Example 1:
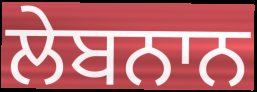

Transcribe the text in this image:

ਲੇਬਨਾਨ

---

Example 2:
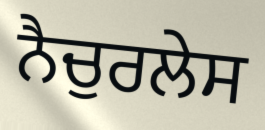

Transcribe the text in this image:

ਨੈਚੁਰਲੇਸ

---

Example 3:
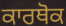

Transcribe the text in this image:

ਕਾਰਥੋਕ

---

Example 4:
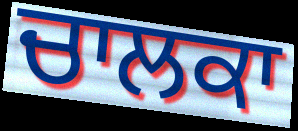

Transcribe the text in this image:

ਚਾਲਕਾ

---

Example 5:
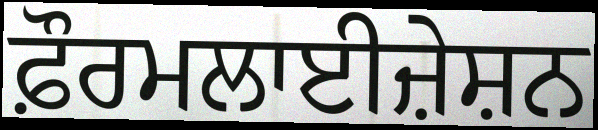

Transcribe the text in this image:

ਫ਼ੌਰਮਲਾਈਜ਼ੇਸ਼ਨ